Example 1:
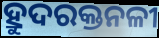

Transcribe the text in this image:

ହ୍ରୁଦରକ୍ତନଳୀ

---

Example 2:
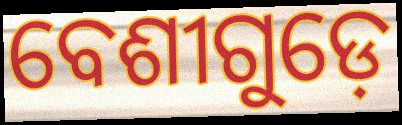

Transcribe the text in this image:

ବେଶୀଗୁଡ଼େ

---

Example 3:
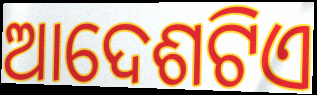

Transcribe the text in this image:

ଆଦେଶଟିଏ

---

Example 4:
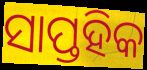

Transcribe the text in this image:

ସାପ୍ତହିକ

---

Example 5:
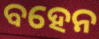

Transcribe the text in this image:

ବହେନ